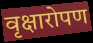
वृक्षारोपण